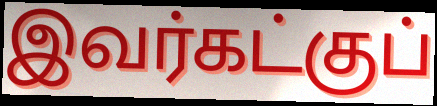
இவர்கட்குப்